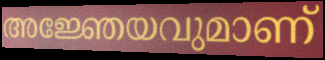
അജ്ഞേയവുമാണ്